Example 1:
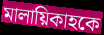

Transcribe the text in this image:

মালায়িকাহকে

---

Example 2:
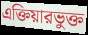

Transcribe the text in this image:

এক্তিয়ারভুক্ত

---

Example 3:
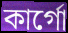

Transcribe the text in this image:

কার্গো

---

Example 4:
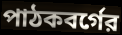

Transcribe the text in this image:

পাঠকবর্গের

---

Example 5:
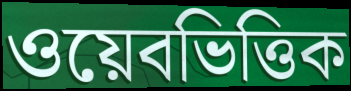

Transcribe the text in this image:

ওয়েবভিত্তিক